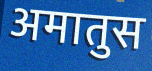
अमातुस